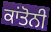
ਕਾਂਤੋਨੀ